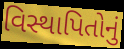
વિસ્થાપિતોનું